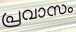
പ്രവാസം